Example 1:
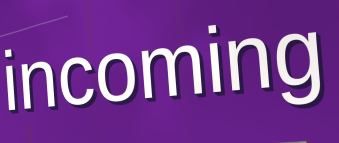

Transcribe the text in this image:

incoming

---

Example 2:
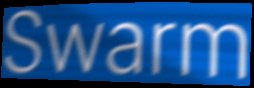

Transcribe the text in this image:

Swarm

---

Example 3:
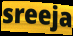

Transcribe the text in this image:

sreeja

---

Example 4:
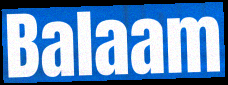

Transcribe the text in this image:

Balaam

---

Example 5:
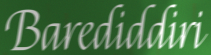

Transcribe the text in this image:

Barediddiri